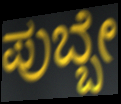
ಪುಬ್ಬೇ